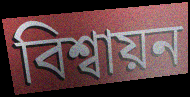
বিশ্বায়ন